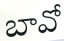
బావో